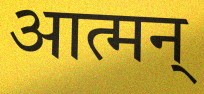
आत्मन्